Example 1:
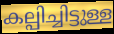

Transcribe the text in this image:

കല്പിച്ചിട്ടുള്ള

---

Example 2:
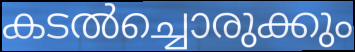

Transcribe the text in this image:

കടൽച്ചൊരുക്കും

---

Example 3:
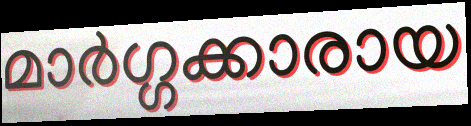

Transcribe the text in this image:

മാർഗ്ഗക്കാരായ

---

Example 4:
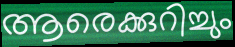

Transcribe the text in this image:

ആരെക്കുറിച്ചും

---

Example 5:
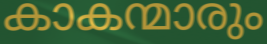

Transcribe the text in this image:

കാകന്മാരും